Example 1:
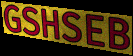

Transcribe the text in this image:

GSHSEB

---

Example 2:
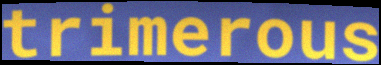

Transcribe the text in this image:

trimerous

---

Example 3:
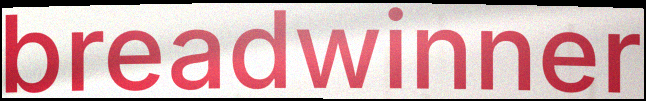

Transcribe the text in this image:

breadwinner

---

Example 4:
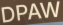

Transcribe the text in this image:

DPAW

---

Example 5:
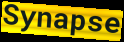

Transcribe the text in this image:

Synapse